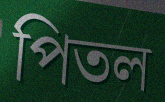
পিতল